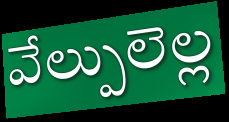
వేల్పులెల్ల